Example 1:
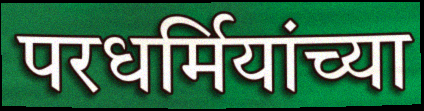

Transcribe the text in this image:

परधर्मियांच्या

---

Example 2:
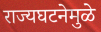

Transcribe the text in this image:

राज्यघटनेमुळे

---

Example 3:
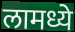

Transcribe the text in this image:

लामध्ये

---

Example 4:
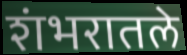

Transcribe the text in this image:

शंभरातले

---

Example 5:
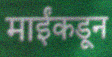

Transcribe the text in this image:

माईंकडून